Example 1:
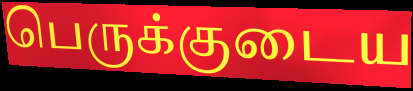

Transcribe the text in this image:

பெருக்குடைய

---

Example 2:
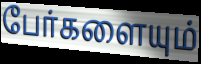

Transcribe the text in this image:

பேர்களையும்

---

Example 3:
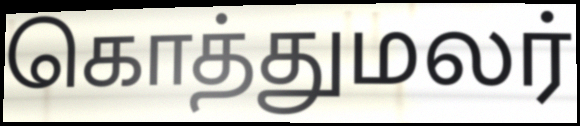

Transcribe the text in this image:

கொத்துமலர்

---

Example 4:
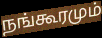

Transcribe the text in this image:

நங்கூரமும்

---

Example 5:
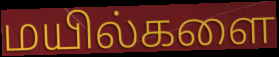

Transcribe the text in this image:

மயில்களை